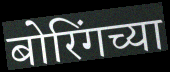
बोरिंगच्या